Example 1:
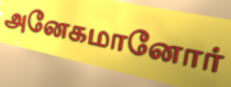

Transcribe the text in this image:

அனேகமானோர்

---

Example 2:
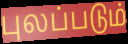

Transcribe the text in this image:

புலப்படும்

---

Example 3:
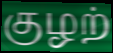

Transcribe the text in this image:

குழற்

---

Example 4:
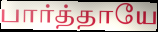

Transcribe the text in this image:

பார்த்தாயே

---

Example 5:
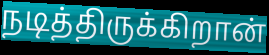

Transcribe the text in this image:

நடித்திருக்கிறான்